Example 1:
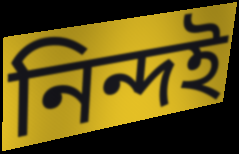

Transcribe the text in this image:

নিন্দই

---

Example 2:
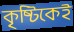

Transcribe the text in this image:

কৃষ্টিকেই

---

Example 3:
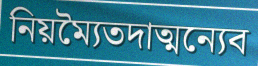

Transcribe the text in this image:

নিয়ম্যৈতদাত্মন্যেব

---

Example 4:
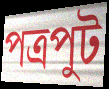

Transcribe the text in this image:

পত্রপুট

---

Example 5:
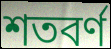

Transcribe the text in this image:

শতবর্ণ